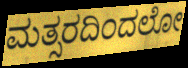
ಮತ್ಸರದಿಂದಲೋ